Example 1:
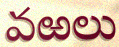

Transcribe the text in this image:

వఱలు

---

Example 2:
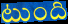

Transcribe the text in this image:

టుంది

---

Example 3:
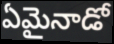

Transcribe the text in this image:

ఏమైనాడో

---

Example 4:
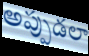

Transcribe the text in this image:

అప్పుడలా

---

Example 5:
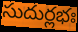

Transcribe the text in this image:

సుదుర్లభః